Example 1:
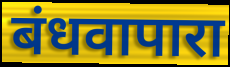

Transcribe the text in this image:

बंधवापारा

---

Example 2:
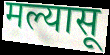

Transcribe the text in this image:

मल्यासू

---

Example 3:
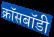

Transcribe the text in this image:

क्रॉसबॉडी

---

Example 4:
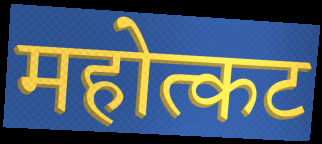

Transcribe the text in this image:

महोत्कट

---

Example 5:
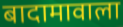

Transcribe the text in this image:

बादामावाला